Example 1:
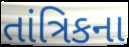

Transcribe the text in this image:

તાંત્રિકના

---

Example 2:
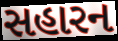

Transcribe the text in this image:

સહારન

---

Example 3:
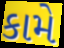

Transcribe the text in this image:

કામે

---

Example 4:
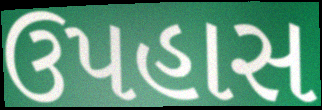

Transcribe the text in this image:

ઉપહાસ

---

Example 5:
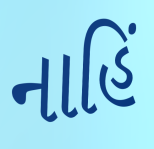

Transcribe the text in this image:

નાહિં